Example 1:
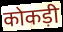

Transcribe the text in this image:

कोकड़ी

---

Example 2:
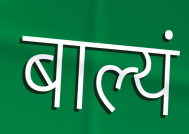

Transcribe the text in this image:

बाल्यं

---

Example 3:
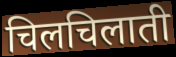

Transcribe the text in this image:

चिलचिलाती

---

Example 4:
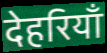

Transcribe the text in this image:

देहरियाँ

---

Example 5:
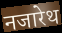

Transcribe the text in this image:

नजारेथ